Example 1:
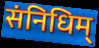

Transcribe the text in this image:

संनिधिम्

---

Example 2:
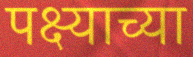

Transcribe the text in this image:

पक्ष्याच्या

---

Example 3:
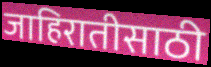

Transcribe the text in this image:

जाहिरातीसाठी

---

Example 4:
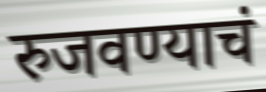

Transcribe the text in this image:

रुजवण्याचं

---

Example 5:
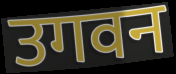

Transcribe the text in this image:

उगवन